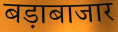
बड़ाबाजार